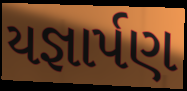
યજ્ઞાર્પણ